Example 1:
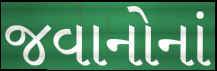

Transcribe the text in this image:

જવાનોનાં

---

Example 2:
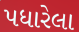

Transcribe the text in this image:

પધારેલા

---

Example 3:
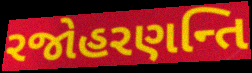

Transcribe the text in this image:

રજોહરણન્તિ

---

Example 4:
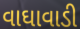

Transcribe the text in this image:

વાઘાવાડી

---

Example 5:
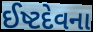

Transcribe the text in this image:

ઈષ્ટદેવના